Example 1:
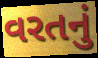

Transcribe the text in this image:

વરતનું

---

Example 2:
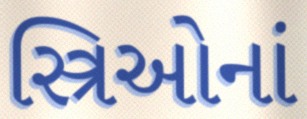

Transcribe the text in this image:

સ્ત્રિઓનાં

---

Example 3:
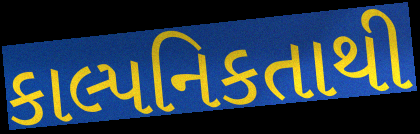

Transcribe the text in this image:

કાલ્પનિકતાથી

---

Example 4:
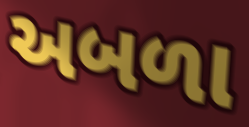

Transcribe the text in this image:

અબળા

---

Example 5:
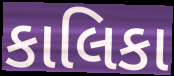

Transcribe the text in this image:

કાલિકા